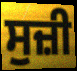
ਸੁਜ਼ੀ